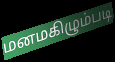
மனமகிழும்படி